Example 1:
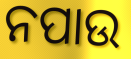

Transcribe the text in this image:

ନପାଉ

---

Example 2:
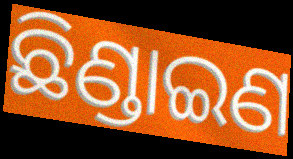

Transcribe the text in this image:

ଛିଣ୍ଡାଇଣ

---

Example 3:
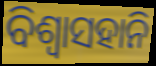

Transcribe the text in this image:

ବିଶ୍ବାସହାନି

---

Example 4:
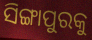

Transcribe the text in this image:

ସିଙ୍ଗାପୁରକୁ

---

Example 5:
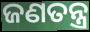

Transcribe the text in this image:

ଜଣତନ୍ତ୍ର